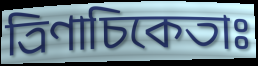
ত্রিণাচিকেতাঃ